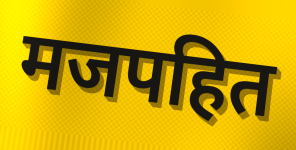
मजपहित